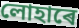
লোহাৰে